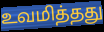
உவமித்தது